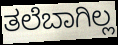
ತಲೆಬಾಗಿಲ್ಲ